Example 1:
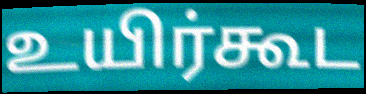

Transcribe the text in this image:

உயிர்கூட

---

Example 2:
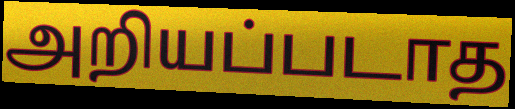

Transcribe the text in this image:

அறியப்படாத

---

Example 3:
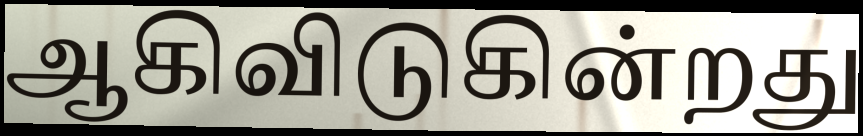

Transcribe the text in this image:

ஆகிவிடுகின்றது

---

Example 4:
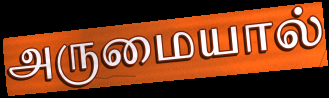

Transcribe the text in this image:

அருமையால்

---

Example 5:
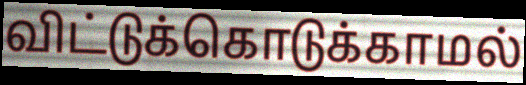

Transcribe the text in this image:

விட்டுக்கொடுக்காமல்